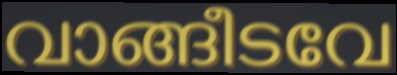
വാങ്ങീടവേ